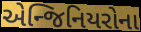
એન્જિનિયરોના